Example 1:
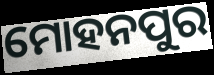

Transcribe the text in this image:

ମୋହନପୁର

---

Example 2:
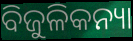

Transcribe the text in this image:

ବିଜୁଳିକନ୍ୟା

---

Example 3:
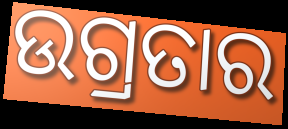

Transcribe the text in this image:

ଉଗ୍ରତାର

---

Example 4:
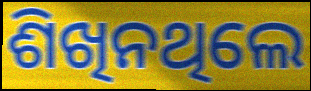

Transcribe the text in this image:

ଶିଖିନଥିଲେ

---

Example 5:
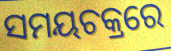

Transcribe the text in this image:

ସମୟଚକ୍ରରେ